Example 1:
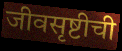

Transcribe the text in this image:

जीवसृष्टीची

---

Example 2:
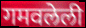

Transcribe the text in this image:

गमवलेली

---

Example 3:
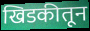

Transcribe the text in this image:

खिडकीतून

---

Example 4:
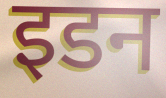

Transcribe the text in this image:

इडन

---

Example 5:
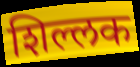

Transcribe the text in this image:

शिल्लक